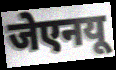
जेएनयू